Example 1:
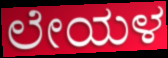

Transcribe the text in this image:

ಲೇಯಳ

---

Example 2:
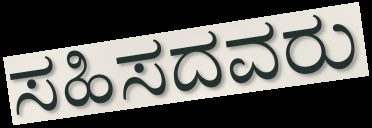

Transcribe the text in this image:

ಸಹಿಸದವರು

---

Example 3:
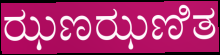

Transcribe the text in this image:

ಝಣಝಣಿತ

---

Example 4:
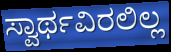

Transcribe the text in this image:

ಸ್ವಾರ್ಥವಿರಲಿಲ್ಲ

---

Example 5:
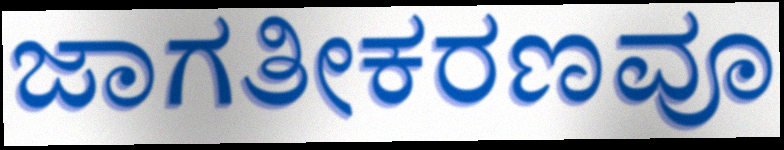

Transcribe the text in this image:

ಜಾಗತೀಕರಣವೂ